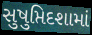
સુષુપ્તિદશામાં